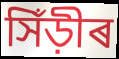
সিঁড়ীৰ